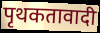
पृथकतावादी